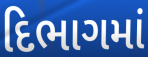
દિભાગમાં